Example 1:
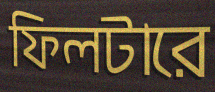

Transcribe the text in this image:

ফিলটারে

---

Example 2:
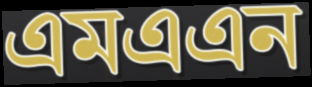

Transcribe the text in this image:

এমএএন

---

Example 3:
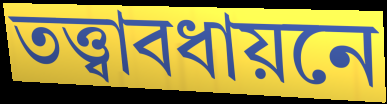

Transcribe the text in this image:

তত্ত্বাবধায়নে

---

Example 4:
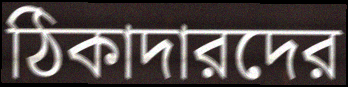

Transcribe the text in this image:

ঠিকাদারদের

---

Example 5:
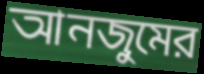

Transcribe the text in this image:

আনজুমের